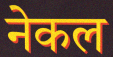
नेकल